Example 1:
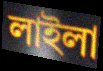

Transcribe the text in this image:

লাইলা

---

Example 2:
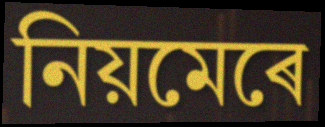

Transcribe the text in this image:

নিয়মেৰে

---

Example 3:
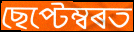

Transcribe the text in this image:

ছেপ্টেম্বৰত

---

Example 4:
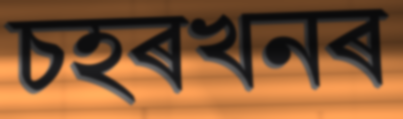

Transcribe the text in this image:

চহৰখনৰ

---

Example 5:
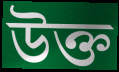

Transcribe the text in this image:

উক্ত